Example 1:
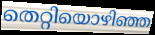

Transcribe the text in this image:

തെറ്റിയൊഴിഞ്ഞ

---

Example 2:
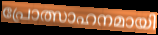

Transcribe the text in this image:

പ്രോത്സാഹനമായി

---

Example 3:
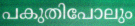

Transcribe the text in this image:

പകുതിപോലും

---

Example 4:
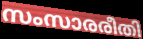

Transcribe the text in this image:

സംസാരരീതി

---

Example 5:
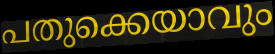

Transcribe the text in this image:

പതുക്കെയാവും